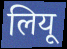
लियू